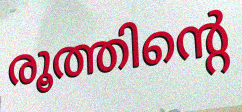
രൂത്തിന്റെ